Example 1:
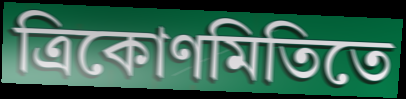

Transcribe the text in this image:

ত্রিকোণমিতিতে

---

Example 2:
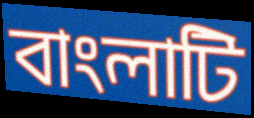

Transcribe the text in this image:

বাংলাটি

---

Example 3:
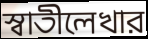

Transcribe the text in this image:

স্বাতীলেখার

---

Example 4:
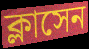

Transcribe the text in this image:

ক্লাসেন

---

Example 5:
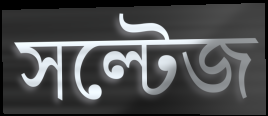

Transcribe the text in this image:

সল্টেজ